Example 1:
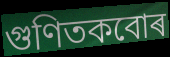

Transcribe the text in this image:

গুণিতকবোৰ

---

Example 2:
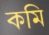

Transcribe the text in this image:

কমি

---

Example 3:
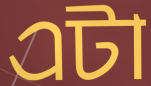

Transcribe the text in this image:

এটা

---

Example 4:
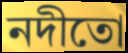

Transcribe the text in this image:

নদীতো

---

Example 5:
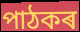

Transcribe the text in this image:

পাঠকৰ